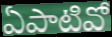
ఏపాటివో